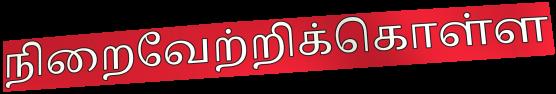
நிறைவேற்றிக்கொள்ள